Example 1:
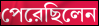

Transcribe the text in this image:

পেরেছিলেন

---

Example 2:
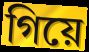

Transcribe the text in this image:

গিয়ে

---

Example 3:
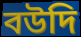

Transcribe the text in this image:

বউদি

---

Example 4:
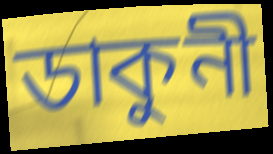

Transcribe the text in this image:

ডাকুনী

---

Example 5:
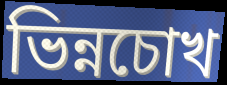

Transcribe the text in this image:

ভিন্নচোখ